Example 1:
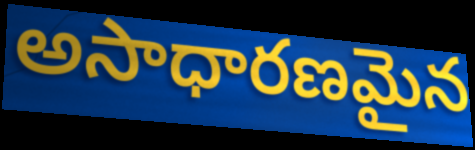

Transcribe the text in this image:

అసాధారణమైన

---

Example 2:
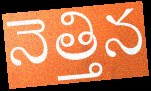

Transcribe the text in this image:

నెత్తిన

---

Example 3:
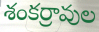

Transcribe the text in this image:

శంకర్రావుల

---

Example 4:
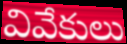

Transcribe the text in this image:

వివేకులు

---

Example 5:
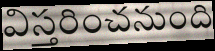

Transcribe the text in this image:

విస్తరించనుంది